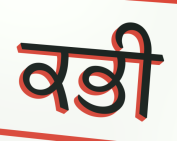
ਕਭੀ